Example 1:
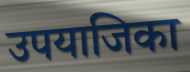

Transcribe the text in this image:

उपयाजिका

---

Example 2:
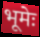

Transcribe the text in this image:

भूमेः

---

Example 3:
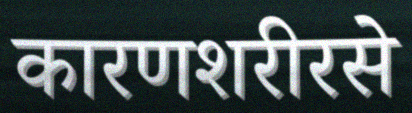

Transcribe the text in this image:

कारणशरीरसे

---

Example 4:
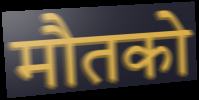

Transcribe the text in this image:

मौतको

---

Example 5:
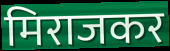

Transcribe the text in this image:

मिराजकर